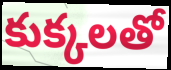
కుక్కలతో